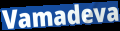
Vamadeva